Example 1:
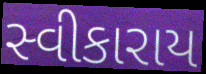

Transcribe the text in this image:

સ્વીકારાય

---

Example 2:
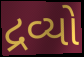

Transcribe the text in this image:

દ્રવ્યો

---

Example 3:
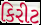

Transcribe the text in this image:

કિરીટ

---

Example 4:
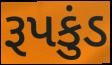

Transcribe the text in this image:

રૂપકુંડ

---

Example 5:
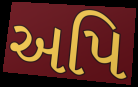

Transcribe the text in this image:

અપિ